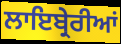
ਲਾਇਬ੍ਰੇਰੀਆਂ